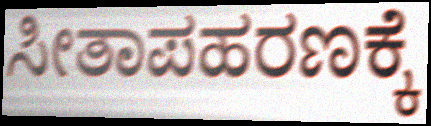
ಸೀತಾಪಹರಣಕ್ಕೆ